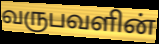
வருபவளின்